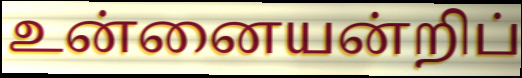
உன்னையன்றிப்